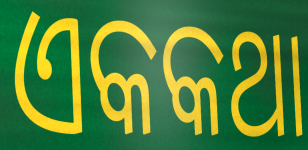
ଏକକଥା